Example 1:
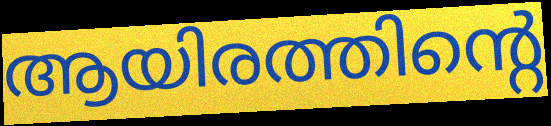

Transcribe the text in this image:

ആയിരത്തിന്റെ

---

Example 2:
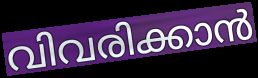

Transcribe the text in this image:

വിവരിക്കാൻ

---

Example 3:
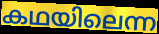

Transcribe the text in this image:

കഥയിലെന്ന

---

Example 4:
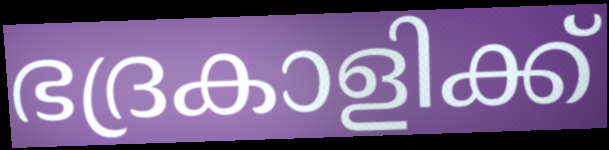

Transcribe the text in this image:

ഭദ്രകാളിക്ക്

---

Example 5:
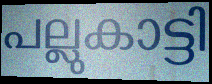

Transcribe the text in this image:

പല്ലുകാട്ടി